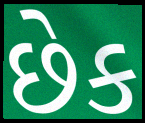
છેક